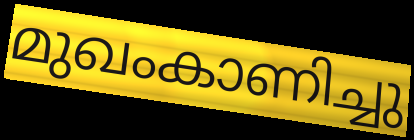
മുഖംകാണിച്ചു